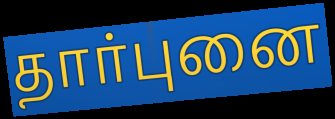
தார்புனை